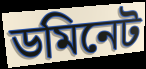
ডমিনেট